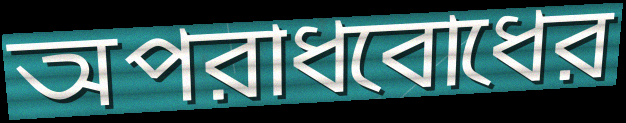
অপরাধবোধের